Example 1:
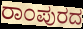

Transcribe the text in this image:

ರಾಂಪುರದ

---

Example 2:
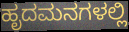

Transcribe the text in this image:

ಹೃದಮನಗಳಲ್ಲಿ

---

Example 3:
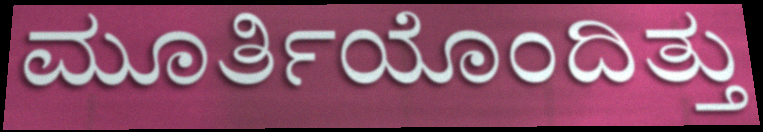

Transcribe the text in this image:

ಮೂರ್ತಿಯೊಂದಿತ್ತು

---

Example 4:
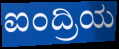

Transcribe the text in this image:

ಐಂದ್ರಿಯ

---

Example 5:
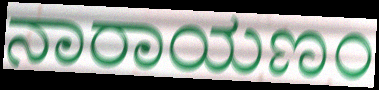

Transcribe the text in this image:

ನಾರಾಯಣಂ